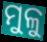
ମୁଳୁ